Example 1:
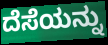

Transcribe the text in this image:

ದೆಸೆಯನ್ನು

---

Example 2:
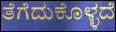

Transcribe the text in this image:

ತೆಗೆದುಕೊಳ್ಳದೆ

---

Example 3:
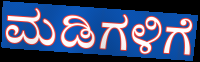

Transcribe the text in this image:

ಮಡಿಗಳಿಗೆ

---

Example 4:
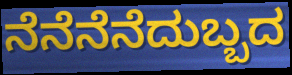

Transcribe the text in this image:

ನೆನೆನೆನೆದುಬ್ಬದ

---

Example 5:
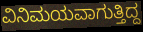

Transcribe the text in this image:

ವಿನಿಮಯವಾಗುತ್ತಿದ್ದ